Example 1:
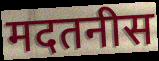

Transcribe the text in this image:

मदतनीस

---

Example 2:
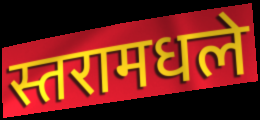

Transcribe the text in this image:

स्तरामधले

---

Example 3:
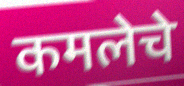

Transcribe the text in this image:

कमलेचे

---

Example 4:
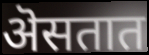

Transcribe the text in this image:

ऄसतात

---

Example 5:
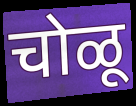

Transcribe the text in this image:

चोळू